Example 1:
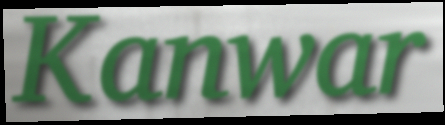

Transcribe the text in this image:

Kanwar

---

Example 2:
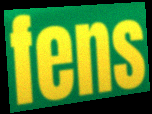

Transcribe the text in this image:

fens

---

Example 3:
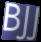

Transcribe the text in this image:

BJJ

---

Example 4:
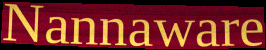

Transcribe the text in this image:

Nannaware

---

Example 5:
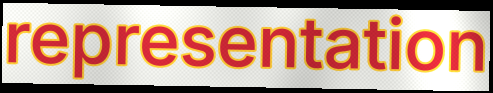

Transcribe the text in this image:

representation